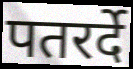
पतरर्दे